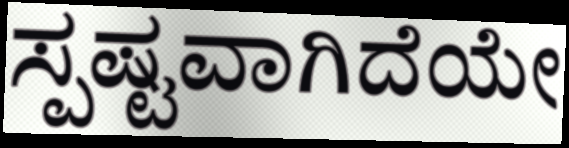
ಸ್ಪಷ್ಟವಾಗಿದೆಯೇ